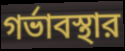
গর্ভাবস্থার